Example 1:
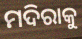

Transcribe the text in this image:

ମଦିରାକୁ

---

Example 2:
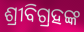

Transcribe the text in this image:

ଶ୍ରୀବିଗ୍ରହଙ୍କ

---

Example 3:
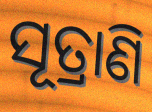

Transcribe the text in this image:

ସୂତ୍ରାଣି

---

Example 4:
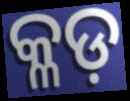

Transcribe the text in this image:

କ୍ଳଡ଼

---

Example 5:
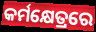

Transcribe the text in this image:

କର୍ମକ୍ଷେତ୍ରରେ